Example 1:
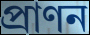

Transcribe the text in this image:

প্রাণন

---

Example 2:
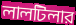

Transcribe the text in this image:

লালটিলার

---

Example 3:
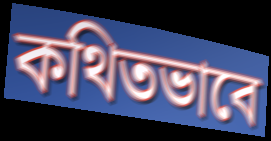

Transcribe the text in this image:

কথিতভাবে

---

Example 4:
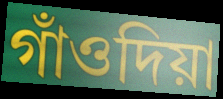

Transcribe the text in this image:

গাঁওদিয়া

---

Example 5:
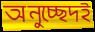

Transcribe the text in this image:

অনুচ্ছেদই